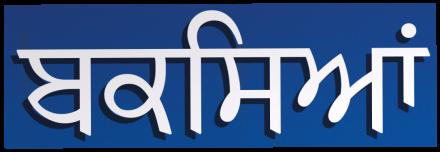
ਬਕਸਿਆਂ